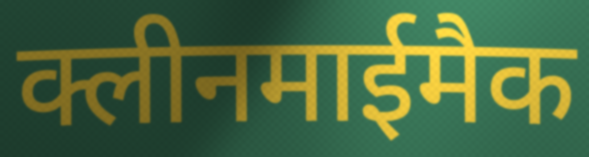
क्लीनमाईमैक